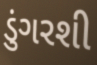
ડુંગરશી